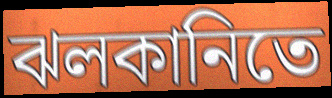
ঝলকানিতে